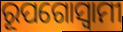
ରୂପଗୋସ୍ୱାମୀ